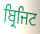
ਬ੍ਰਿਜਿਟ